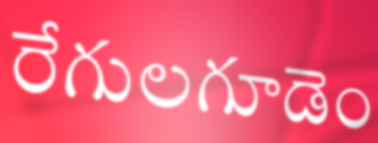
రేగులగూడెం